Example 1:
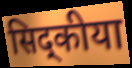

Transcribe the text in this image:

सिद्‌कीया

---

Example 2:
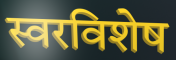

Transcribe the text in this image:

स्वरविशेष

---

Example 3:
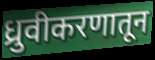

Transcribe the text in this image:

ध्रुवीकरणातून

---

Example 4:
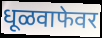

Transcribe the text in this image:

धूळवाफेवर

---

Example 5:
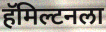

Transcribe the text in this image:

हॅमिल्टनला